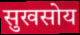
सुखसोय